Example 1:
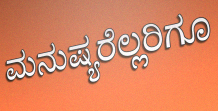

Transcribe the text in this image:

ಮನುಷ್ಯರೆಲ್ಲರಿಗೂ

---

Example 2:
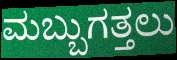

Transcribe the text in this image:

ಮಬ್ಬುಗತ್ತಲು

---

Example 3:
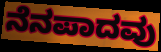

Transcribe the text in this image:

ನೆನಪಾದವು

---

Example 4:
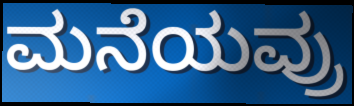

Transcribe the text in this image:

ಮನೆಯವ್ರು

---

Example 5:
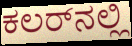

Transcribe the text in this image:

ಕಲರ್‌ನಲ್ಲಿ